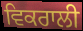
ਵਿਕਰਾਲੀ